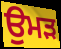
ਉਮੜ